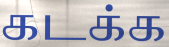
கடக்க